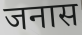
जनास